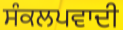
ਸੰਕਲਪਵਾਦੀ